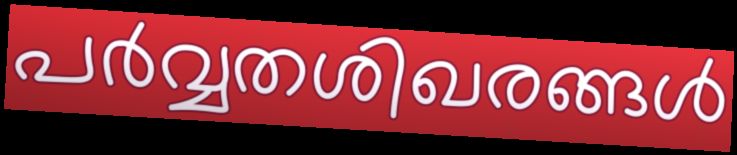
പർവ്വതശിഖരങ്ങൾ